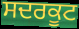
ਸਦਰਕੂਟ